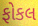
ફોકલ